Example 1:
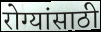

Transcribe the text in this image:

रोग्यांसाठी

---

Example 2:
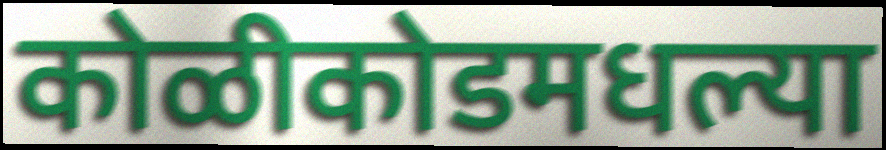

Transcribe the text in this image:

कोळीकोडमधल्या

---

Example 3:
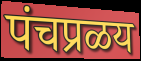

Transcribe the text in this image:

पंचप्रळय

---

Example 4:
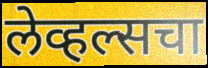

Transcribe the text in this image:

लेव्हल्सचा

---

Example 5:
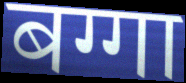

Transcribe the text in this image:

बग्गा